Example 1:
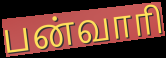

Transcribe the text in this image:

பன்வாரி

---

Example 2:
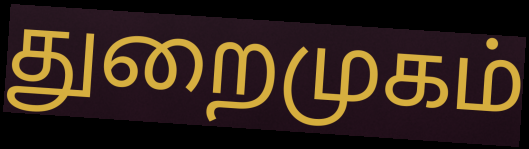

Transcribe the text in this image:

துறைமுகம்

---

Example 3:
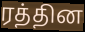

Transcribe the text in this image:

ரத்தின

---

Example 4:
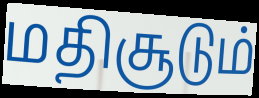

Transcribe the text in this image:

மதிசூடும்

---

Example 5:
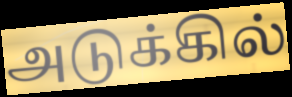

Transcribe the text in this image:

அடுக்கில்